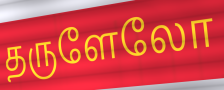
தருளேலோ